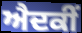
ਐਦਕੀਂ